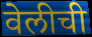
वेलीची